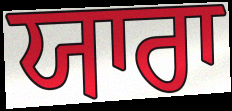
ਯਾਰਾ